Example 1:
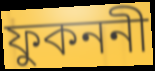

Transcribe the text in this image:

ফুকননী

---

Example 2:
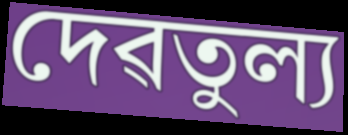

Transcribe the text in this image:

দেৱতুল্য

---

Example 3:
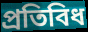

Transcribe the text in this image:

প্ৰতিবিধ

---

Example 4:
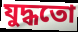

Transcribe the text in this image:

যুদ্ধতো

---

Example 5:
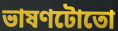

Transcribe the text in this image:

ভাষণটোতো